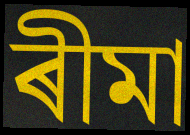
ৰীমা